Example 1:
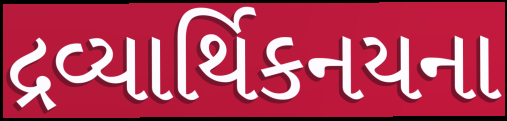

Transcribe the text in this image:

દ્રવ્યાર્થિકનયના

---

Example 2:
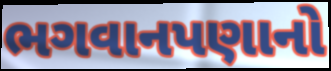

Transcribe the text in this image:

ભગવાનપણાનો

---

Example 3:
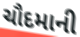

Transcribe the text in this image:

ચૌદમાની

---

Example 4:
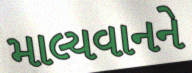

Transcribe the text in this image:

માલ્યવાનને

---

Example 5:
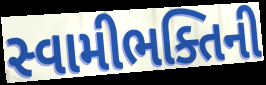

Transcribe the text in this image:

સ્વામીભક્તિની